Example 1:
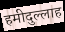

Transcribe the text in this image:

हमीदुल्लाह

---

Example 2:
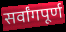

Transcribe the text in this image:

सर्वांगपूर्ण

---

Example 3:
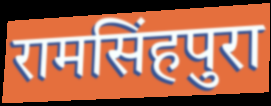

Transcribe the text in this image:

रामसिंहपुरा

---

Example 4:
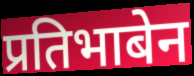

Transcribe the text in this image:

प्रतिभाबेन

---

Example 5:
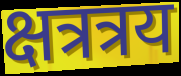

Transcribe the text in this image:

क्षत्रत्रय